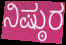
ನಿಷ್ಠುರ